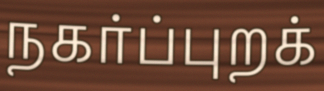
நகர்ப்புறக்